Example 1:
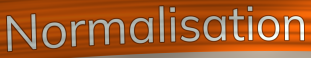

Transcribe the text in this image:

Normalisation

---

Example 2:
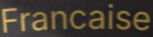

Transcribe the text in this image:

Francaise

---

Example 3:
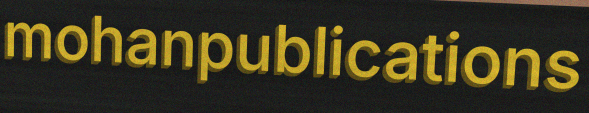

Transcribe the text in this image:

mohanpublications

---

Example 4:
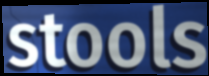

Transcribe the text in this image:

stools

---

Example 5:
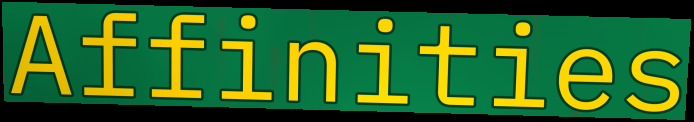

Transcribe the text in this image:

Affinities